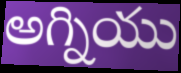
అగ్నియు